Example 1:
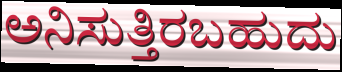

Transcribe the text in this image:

ಅನಿಸುತ್ತಿರಬಹುದು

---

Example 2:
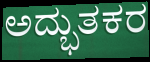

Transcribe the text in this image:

ಅದ್ಭುತಕರ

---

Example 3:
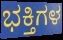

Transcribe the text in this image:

ಭಕ್ತಿಗಳ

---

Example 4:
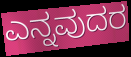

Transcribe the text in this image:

ಎನ್ನವುದರ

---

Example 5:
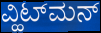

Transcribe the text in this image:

ವ್ಹಿಟ್‌ಮನ್